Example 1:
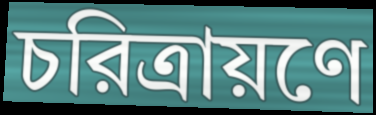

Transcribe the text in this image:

চরিত্রায়ণে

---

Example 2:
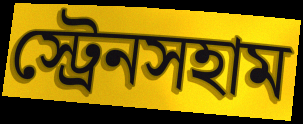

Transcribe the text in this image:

স্ট্রেনসহাম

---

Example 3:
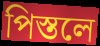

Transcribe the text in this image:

পিস্তলে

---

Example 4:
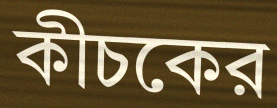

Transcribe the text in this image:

কীচকের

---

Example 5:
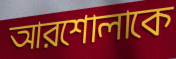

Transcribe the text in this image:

আরশোলাকে